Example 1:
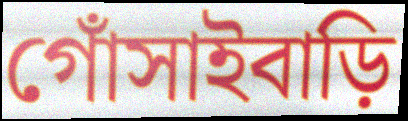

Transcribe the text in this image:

গোঁসাইবাড়ি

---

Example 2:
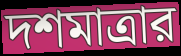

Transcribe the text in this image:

দশমাত্রার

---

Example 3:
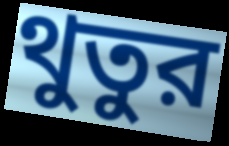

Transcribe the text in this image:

থুতুর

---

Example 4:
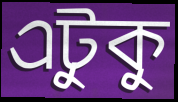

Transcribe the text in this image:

এটুকু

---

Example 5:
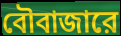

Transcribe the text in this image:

বৌবাজারে